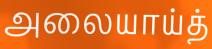
அலையாய்த்